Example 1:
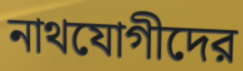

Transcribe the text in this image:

নাথযোগীদের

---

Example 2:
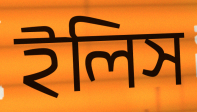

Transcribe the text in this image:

ইলিস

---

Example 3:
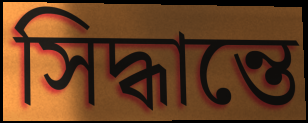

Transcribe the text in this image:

সিদ্ধান্তে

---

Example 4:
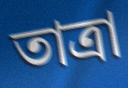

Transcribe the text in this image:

তাত্রা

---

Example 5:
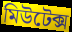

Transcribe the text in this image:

মিউটেক্স